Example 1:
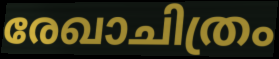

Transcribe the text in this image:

രേഖാചിത്രം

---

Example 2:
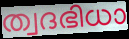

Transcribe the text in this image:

ത്വദഭിധാ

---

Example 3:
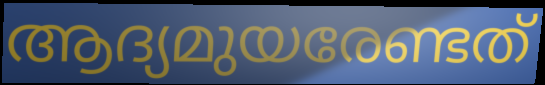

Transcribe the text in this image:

ആദ്യമുയരേണ്ടത്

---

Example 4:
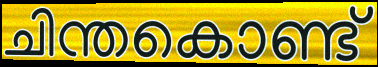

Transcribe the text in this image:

ചിന്തകൊണ്ട്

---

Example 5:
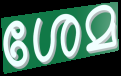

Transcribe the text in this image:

ശേമ